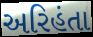
અરિહંતા